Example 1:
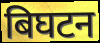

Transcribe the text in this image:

बिघटन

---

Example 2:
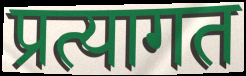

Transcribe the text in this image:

प्रत्यागत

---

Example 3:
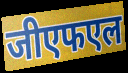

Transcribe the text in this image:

जीएफएल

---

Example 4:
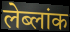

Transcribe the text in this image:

लेब्लांक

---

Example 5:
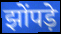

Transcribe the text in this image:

झोंपड़े